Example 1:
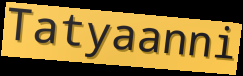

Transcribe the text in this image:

Tatyaanni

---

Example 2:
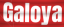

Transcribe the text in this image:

Galoya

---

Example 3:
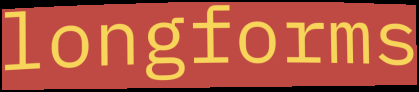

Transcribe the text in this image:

longforms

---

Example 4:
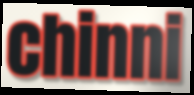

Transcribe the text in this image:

chinni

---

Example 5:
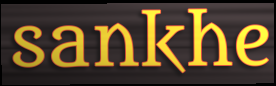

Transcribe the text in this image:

sankhe